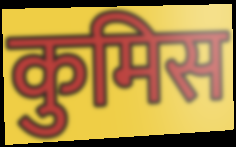
कुमिस